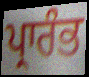
ਪ੍ਰਾਰੰਭ